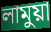
লামুয়া